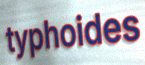
typhoides